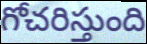
గోచరిస్తుంది